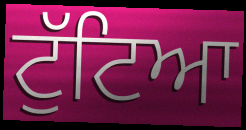
ਟੁੱਟਿਆ